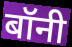
बॉनी